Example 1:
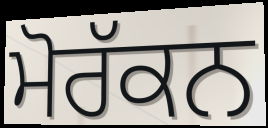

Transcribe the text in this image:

ਮੋਰੱਕਨ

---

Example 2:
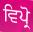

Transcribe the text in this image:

ਵਿਪ੍ਰੋ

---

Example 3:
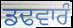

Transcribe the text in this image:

ਡਢਵਾਰੰ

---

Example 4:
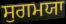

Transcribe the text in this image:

ਸੁਗਮਯਾ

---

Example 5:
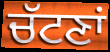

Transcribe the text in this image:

ਚੱਟਣਾਂ